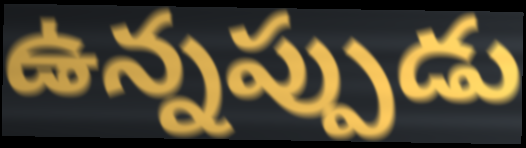
ఉన్నప్పుడు